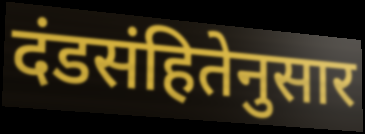
दंडसंहितेनुसार